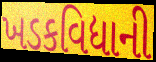
ખડકવિદ્યાની